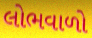
લોભવાળો